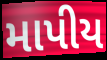
માપીય